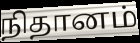
நிதானம்